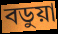
বডুয়া